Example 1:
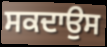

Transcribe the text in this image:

ਸਕਦਾਉਸ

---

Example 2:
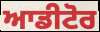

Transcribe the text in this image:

ਆਡੀਟੋਰ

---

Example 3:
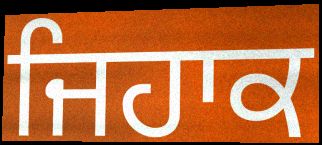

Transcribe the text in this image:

ਜਿਹਾਕ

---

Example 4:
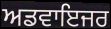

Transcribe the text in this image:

ਅਡਵਾਇਜਰ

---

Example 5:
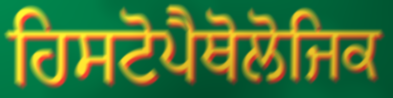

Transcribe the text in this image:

ਹਿਸਟੋਪੈਥੋਲੋਜਿਕ